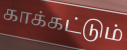
காக்கட்டும்